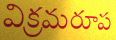
విక్రమరూప